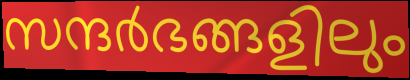
സന്ദർഭങ്ങളിലും